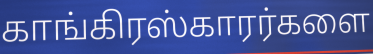
காங்கிரஸ்காரர்களை